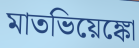
মাতভিয়েঙ্কো